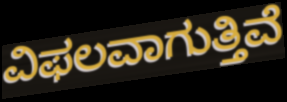
ವಿಫಲವಾಗುತ್ತಿವೆ